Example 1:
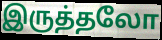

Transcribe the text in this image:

இருத்தலோ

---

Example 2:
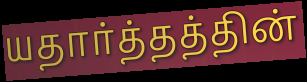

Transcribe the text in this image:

யதார்த்தத்தின்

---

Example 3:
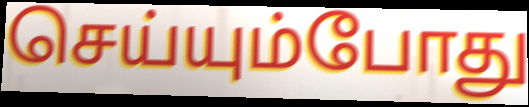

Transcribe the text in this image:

செய்யும்போது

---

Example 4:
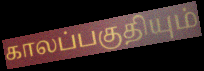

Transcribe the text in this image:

காலப்பகுதியும்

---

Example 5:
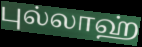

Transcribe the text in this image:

புல்லாஹ்